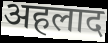
अहलाद